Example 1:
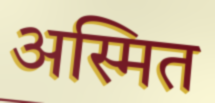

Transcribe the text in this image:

अस्मित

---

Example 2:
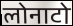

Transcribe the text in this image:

लोनाटो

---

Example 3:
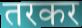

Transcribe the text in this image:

तरकर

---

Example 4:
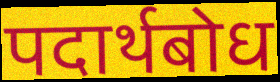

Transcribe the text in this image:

पदार्थबोध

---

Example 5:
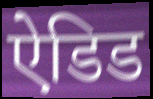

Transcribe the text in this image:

ऐडिड